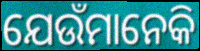
ଯେଉଁମାନେକି